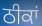
ਠੀਕਾਂ